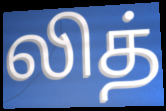
லித்